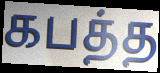
கபத்த